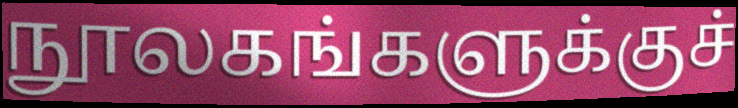
நூலகங்களுக்குச்